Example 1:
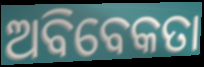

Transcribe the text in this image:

ଅବିବେକତା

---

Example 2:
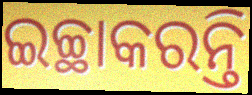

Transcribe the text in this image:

ଇଚ୍ଛାକରନ୍ତି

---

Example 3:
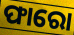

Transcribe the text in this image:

ଫାରୋ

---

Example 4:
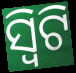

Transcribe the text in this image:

ସ୍ୱିଟି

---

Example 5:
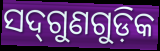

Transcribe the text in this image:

ସଦ୍‌ଗୁଣଗୁଡ଼ିକ